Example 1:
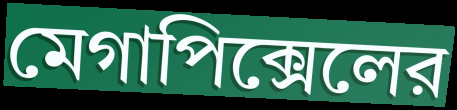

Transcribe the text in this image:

মেগাপিক্সেলের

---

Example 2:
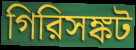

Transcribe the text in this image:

গিরিসঙ্কট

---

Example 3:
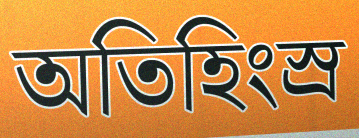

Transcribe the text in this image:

অতিহিংস্র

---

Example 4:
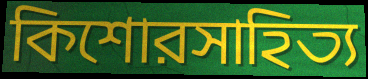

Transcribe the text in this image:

কিশোরসাহিত্য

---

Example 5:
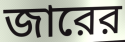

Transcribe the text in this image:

জারের